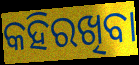
କହିରଖିବା